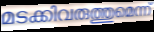
മടക്കിവരുത്തുമെന്ന്